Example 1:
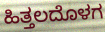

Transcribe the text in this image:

ಹಿತ್ತಲದೊಳಗ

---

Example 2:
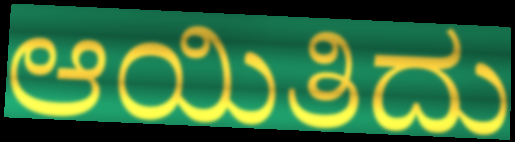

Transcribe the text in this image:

ಆಯಿತಿದು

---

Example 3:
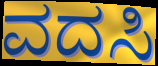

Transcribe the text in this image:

ವದಸಿ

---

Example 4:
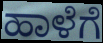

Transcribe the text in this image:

ಹಾಳೆಗೆ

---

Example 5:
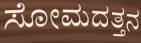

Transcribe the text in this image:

ಸೋಮದತ್ತನ